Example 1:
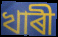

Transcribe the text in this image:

খাৰী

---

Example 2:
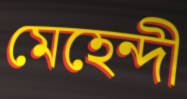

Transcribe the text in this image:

মেহেন্দী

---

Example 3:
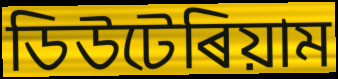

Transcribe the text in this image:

ডিউটেৰিয়াম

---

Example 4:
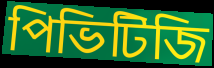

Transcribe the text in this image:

পিভিটিজি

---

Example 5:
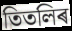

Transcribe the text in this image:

তিতলিৰ